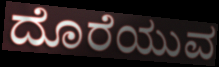
ದೊರೆಯುವ